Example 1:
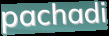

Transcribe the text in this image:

pachadi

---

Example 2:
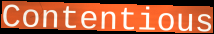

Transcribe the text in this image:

Contentious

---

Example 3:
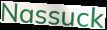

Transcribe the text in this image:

Nassuck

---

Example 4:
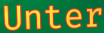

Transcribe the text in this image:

Unter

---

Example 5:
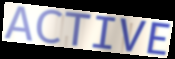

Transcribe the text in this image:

ACTIVE